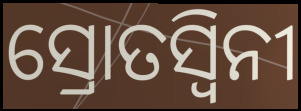
ସ୍ରୋତସ୍ୱିନୀ